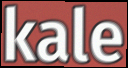
kale